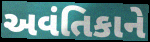
અવંતિકાને